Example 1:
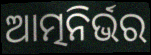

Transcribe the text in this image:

ଆତ୍ମନିର୍ଭର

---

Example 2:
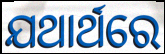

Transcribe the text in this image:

ଯଥାର୍ଥରେ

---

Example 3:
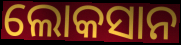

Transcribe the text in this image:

ଲୋକସାନ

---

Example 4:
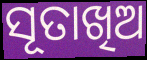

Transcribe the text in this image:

ସୂତାଖିଅ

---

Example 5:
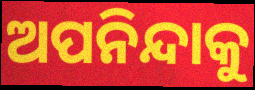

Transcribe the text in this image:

ଅପନିନ୍ଦାକୁ